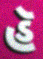
હૅ